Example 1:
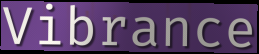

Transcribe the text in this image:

Vibrance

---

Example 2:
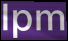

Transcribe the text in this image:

Ipm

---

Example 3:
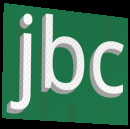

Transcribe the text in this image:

jbc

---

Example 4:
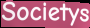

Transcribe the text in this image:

Societys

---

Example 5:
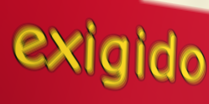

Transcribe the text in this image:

exigido